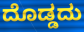
ದೊಡ್ಡದು